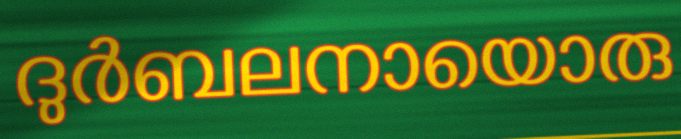
ദുർബലനായൊരു